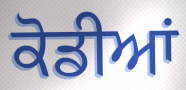
ਕੋਡੀਆਂ